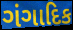
ગંગાદિક